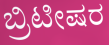
ಬ್ರಿಟೀಷರ